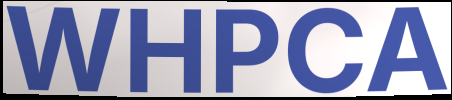
WHPCA